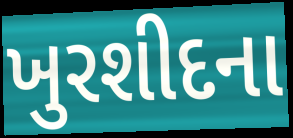
ખુરશીદના